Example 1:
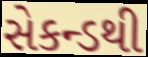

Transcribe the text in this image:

સેકન્ડથી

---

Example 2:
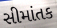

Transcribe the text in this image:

સીમાંતક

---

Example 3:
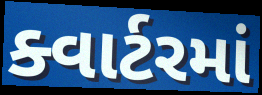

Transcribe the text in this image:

ક્વાર્ટરમાં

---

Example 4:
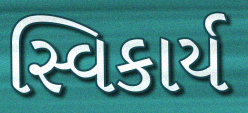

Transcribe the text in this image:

સ્વિકાર્ય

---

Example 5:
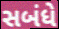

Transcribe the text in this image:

સબંધે